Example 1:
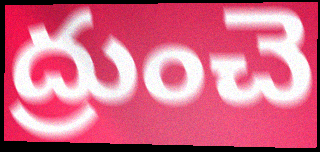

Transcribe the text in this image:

ద్రుంచె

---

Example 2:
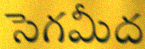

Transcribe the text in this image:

సెగమీద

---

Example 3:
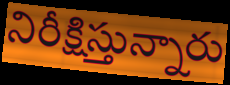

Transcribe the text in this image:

నిరీక్షిస్తున్నారు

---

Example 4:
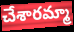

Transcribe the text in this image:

చేశారమ్మా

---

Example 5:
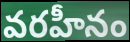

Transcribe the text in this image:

వరహీనం